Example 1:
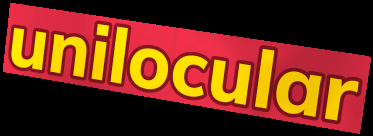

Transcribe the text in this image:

unilocular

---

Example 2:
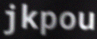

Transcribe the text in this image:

jkpou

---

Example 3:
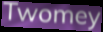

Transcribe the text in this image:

Twomey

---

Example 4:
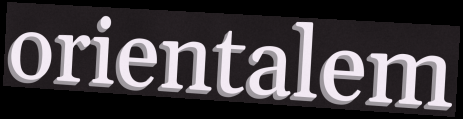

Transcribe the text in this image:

orientalem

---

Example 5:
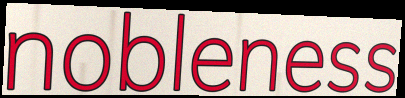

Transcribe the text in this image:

nobleness